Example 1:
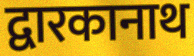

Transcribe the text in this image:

द्वारकानाथ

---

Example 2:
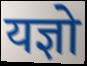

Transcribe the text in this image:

यज्ञो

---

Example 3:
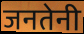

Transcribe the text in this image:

जनतेनी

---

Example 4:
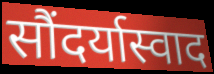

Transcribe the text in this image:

सौंदर्यास्वाद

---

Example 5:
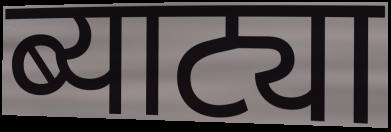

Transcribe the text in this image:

ब्याट्या